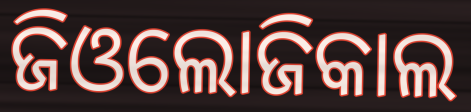
ଜିଓଲୋଜିକାଲ